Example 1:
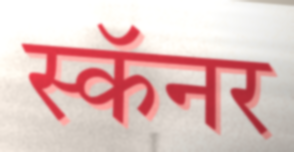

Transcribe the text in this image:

स्कॅनर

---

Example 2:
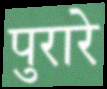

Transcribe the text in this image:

पुरारे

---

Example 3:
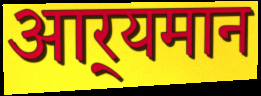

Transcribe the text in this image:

आर्यमान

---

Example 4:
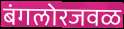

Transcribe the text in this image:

बंगलोरजवळ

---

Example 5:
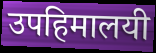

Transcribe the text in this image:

उपहिमालयी